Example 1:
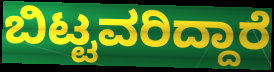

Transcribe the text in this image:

ಬಿಟ್ಟವರಿದ್ದಾರೆ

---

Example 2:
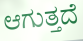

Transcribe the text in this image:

ಆಗುತ್ತದೆ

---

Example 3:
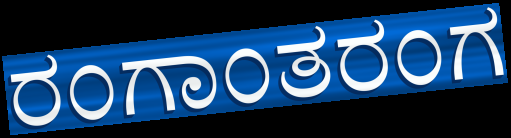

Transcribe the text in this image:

ರಂಗಾಂತರಂಗ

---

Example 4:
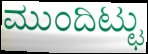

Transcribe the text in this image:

ಮುಂದಿಟ್ಟು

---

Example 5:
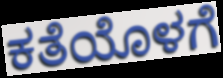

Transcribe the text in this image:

ಕತೆಯೊಳಗೆ